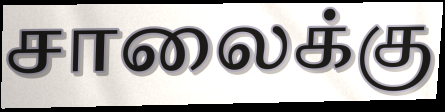
சாலைக்கு